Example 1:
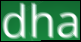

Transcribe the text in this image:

dha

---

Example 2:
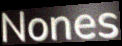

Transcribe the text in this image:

Nones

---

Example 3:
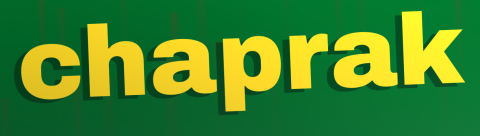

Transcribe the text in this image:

chaprak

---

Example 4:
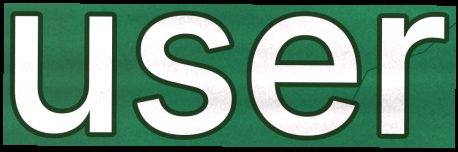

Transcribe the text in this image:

user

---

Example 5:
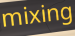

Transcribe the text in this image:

mixing